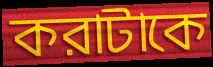
করাটাকে